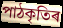
পাঠকৃতিৰ